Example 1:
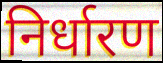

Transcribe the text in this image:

निर्धारण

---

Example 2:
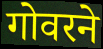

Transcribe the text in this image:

गोवरने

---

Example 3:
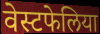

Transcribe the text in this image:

वेस्टफेलिया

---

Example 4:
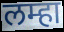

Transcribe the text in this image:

लम्हा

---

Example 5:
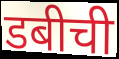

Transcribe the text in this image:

डबीची